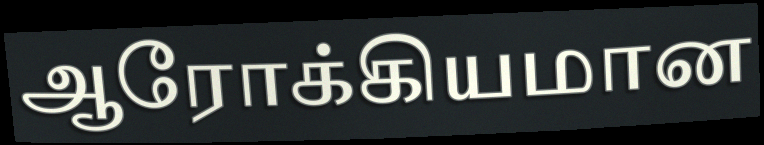
ஆரோக்கியமான